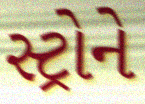
સ્ટ્રોને